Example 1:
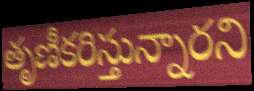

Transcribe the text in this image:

తృణీకరిస్తున్నారని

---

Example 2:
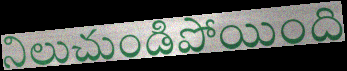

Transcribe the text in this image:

నిలుచుండిపోయింది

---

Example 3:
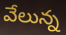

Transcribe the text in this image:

వేలున్న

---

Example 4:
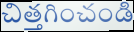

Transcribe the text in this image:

చిత్తగించండి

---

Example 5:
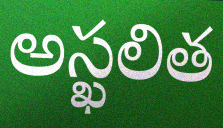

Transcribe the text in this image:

అస్ఖలిత